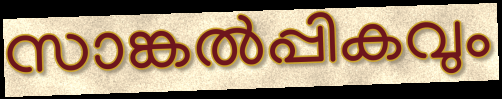
സാങ്കൽപ്പികവും